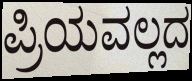
ಪ್ರಿಯವಲ್ಲದ